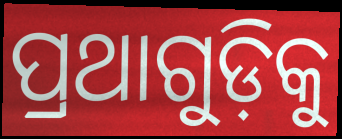
ପ୍ରଥାଗୁଡ଼ିକୁ